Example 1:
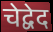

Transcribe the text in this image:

चेद्वेद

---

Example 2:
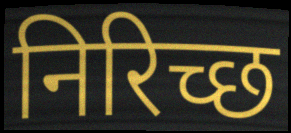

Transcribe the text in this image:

निरिच्छ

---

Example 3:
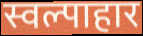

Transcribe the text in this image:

स्वल्पाहार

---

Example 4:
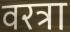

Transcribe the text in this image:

वरत्रा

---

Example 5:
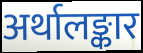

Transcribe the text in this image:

अर्थालङ्कार